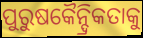
ପୁରୁଷକୈନ୍ଦ୍ରିକତାକୁ